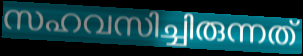
സഹവസിച്ചിരുന്നത്